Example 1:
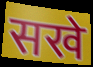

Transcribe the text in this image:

सखे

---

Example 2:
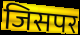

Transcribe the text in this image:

जिसपर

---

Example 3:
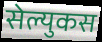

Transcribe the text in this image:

सेल्युकस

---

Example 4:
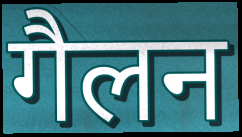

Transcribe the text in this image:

गैलन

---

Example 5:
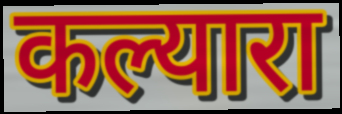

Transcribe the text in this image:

कल्यारा